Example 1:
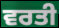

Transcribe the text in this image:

ਵਰਤੀ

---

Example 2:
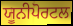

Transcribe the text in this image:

ਯੂਨੀਪੋਰਟਲ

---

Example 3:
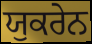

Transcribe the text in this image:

ਯੁਕਰੇਨ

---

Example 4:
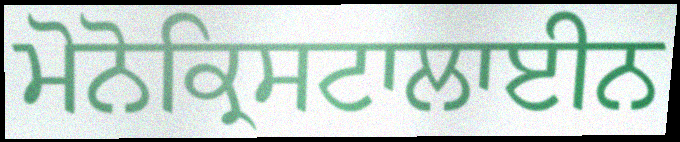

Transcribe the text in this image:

ਮੋਨੋਕ੍ਰਿਸਟਾਲਾਈਨ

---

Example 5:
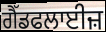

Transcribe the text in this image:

ਗੈੱਡਫਲਾਈਜ਼